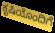
ಕೃಷಿಯೊಂದಿಗೆ